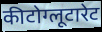
कीटोग्लूटारेट